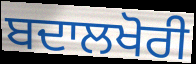
ਬਦਾਲਖੋਰੀ